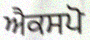
ਐਕਸਪੋ